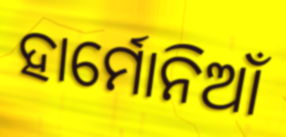
ହାର୍ମୋନିଆଁ